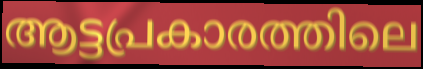
ആട്ടപ്രകാരത്തിലെ